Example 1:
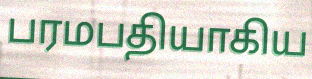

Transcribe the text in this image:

பரமபதியாகிய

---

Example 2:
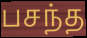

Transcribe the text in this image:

பசந்த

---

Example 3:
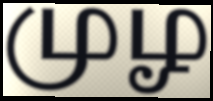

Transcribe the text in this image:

முழ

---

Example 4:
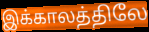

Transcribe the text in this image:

இக்காலத்திலே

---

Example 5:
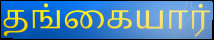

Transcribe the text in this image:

தங்கையார்